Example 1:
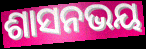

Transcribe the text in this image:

ଶାସନଭୟ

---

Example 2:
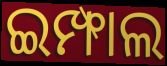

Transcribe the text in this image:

ଇମ୍ଫାଲ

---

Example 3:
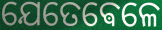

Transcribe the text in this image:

ଯେତେଵେଳେ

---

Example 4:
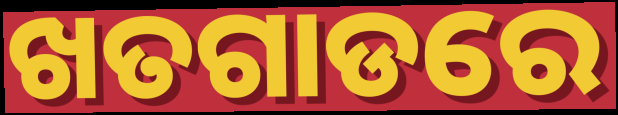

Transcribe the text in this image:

ଖତଗାଡରେ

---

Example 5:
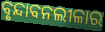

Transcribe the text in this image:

ବୃନ୍ଦାବନଲୀଳାର